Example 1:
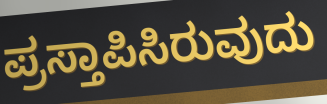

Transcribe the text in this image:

ಪ್ರಸ್ತಾಪಿಸಿರುವುದು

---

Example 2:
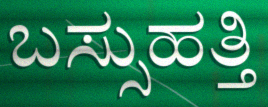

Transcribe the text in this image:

ಬಸ್ಸುಹತ್ತಿ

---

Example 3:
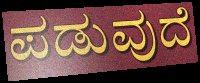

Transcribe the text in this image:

ಪಡುವುದೆ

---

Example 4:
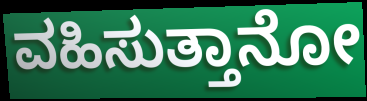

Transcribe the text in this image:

ವಹಿಸುತ್ತಾನೋ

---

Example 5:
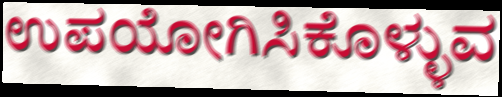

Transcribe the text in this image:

ಉಪಯೋಗಿಸಿಕೊಳ್ಳುವ